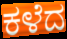
ಕಳೆದ